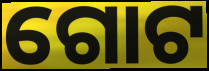
ଗୋଟ